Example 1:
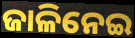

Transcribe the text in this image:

ଜାଳିନେଇ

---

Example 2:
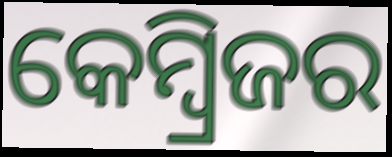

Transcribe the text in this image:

କେମ୍ବ୍ରିଜର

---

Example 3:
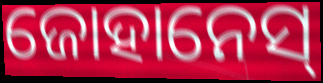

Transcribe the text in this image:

ଜୋହାନେସ୍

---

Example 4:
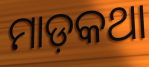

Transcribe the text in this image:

ମାଡ଼କଥା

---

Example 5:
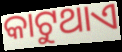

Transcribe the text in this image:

କାଟୁଥାଏ